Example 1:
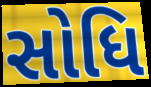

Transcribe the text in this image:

સોધિ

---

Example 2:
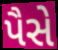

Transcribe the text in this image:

પૈસે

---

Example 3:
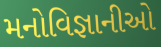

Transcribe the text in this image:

મનોવિજ્ઞાનીઓ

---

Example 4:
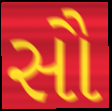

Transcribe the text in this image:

સૌ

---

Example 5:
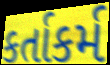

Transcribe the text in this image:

કર્તાકર્મ